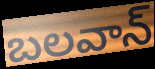
బలవాన్